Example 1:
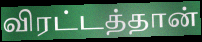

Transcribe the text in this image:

விரட்டத்தான்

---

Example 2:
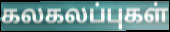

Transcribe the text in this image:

கலகலப்புகள்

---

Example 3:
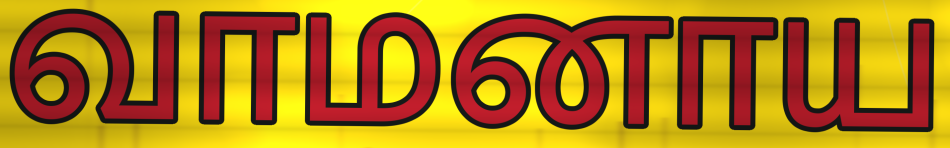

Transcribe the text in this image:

வாமனாய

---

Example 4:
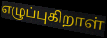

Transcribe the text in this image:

எழுப்புகிறாள்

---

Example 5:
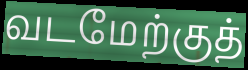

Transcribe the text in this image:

வடமேற்குத்